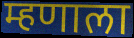
म्हणाला